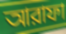
আরাফা